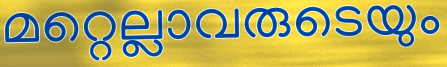
മറ്റെല്ലാവരുടെയും